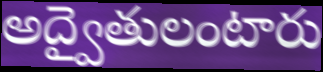
అద్వైతులంటారు